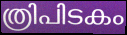
ത്രിപിടകം